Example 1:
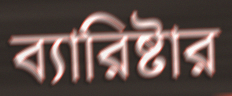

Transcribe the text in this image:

ব্যারিষ্টার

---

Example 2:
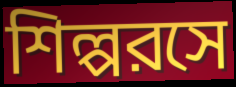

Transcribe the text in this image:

শিল্পরসে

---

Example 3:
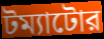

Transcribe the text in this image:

টম্যাটোর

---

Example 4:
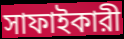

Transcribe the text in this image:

সাফাইকারী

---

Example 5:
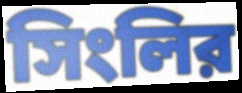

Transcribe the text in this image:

সিংলির